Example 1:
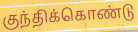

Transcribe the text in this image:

குந்திக்கொண்டு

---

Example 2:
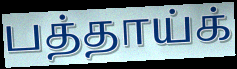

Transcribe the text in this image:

பத்தாய்க்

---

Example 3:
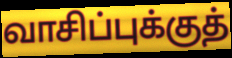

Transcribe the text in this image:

வாசிப்புக்குத்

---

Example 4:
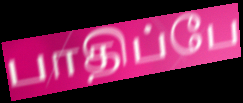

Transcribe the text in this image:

பாதிப்பே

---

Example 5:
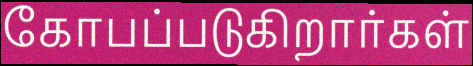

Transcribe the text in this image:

கோபப்படுகிறார்கள்